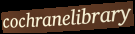
cochranelibrary